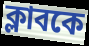
ক্লাবকে